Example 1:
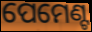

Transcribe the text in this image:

ପେମେଣ୍ଟ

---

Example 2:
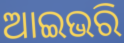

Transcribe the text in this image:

ଆଇଭରି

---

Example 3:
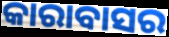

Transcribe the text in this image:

କାରାବାସର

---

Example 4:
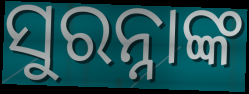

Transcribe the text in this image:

ସୁରନ୍ନାଙ୍କ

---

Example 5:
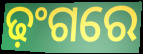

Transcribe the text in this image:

ଢ଼ଂଗରେ